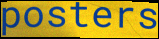
posters